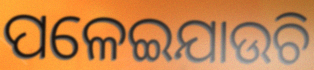
ପଳେଇଯାଉଚି